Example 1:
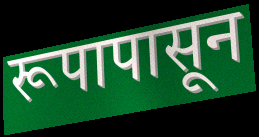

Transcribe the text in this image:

रूपापासून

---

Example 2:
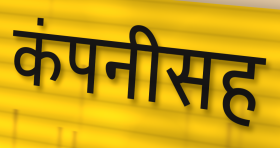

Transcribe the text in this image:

कंपनीसह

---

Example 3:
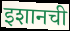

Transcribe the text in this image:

इशानची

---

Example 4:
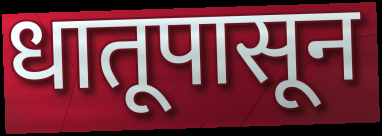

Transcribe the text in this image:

धातूपासून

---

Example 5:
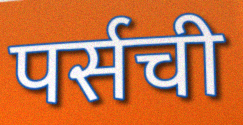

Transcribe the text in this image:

पर्सची